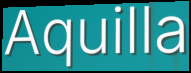
Aquilla